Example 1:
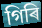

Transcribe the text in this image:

গিৰি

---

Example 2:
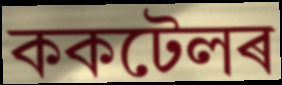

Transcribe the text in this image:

ককটেলৰ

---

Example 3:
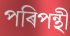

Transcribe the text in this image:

পৰিপন্থী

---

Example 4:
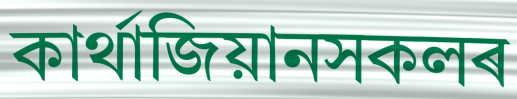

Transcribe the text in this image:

কাৰ্থাজিয়ানসকলৰ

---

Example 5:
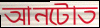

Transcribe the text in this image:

আনটোত